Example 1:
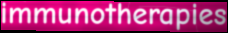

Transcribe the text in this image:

immunotherapies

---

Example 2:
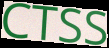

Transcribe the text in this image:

CTSS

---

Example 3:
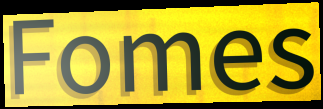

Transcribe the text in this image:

Fomes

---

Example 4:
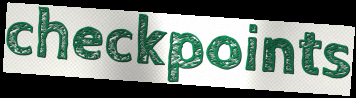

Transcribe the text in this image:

checkpoints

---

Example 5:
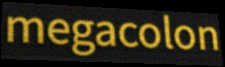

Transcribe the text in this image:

megacolon